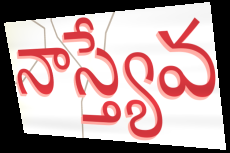
నాస్త్యేవ